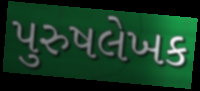
પુરુષલેખક